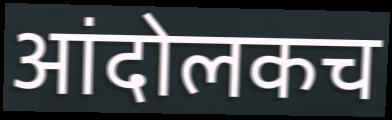
आंदोलकच